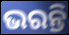
ଭରନ୍ତି